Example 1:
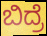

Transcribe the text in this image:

ಬಿದ್ರೆ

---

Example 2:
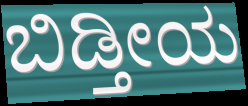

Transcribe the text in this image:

ಬಿಡ್ತೀಯ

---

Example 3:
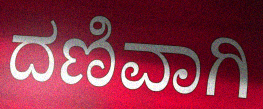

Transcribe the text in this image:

ದಣಿವಾಗಿ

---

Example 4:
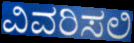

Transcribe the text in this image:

ವಿವರಿಸಲಿ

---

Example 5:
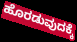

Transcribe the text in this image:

ಹೊರಡುವುದಕ್ಕೆ